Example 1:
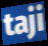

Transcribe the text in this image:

taji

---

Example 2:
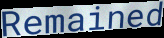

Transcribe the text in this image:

Remained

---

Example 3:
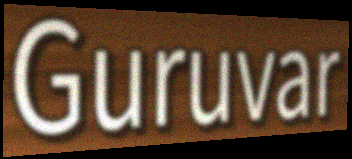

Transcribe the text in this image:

Guruvar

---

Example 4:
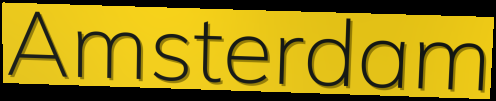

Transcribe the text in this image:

Amsterdam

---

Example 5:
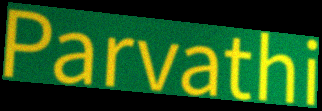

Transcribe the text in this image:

Parvathi